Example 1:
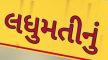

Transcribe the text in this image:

લધુમતીનું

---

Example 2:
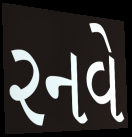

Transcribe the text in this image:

રનવે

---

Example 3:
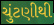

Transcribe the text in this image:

ચુંટણીથી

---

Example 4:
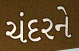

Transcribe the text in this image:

ચંદરને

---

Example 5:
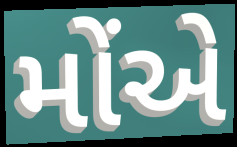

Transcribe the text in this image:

મોંએ